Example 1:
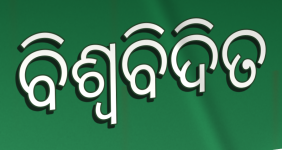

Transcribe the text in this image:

ବିଶ୍ବବିଦିତ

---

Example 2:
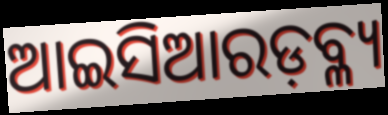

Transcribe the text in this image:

ଆଇସିଆରଡ଼ବ୍ଳ୍ୟ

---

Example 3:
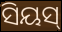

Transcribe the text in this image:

ସିୟସ୍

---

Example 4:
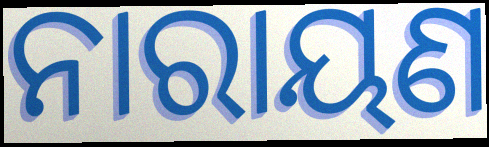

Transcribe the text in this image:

ନାରାୟଣ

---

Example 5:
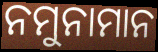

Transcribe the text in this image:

ନମୁନାମାନ